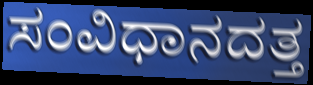
ಸಂವಿಧಾನದತ್ತ